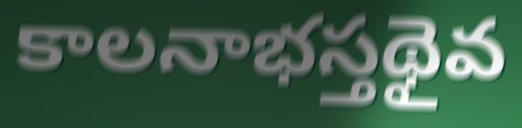
కాలనాభస్తథైవ